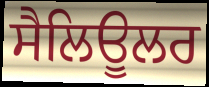
ਸੈਲਿਊਲਰ